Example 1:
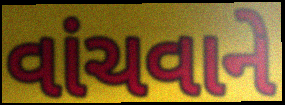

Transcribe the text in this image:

વાંચવાને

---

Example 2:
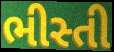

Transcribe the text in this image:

ભીસ્તી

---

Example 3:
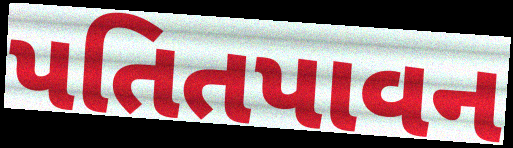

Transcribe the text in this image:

પતિતપાવન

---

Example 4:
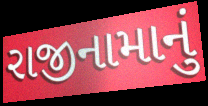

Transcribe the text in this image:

રાજીનામાનું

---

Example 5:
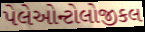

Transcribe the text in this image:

પેલેઓન્ટોલોજીકલ